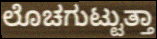
ಲೊಚಗುಟ್ಟುತ್ತಾ